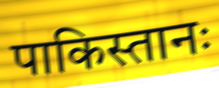
पाकिस्तानः